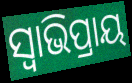
ସ୍ଵାଭିପ୍ରାୟ